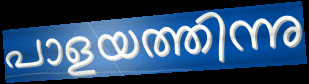
പാളയത്തിന്നു